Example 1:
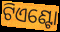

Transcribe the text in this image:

ଟିଏଣ୍ଟୋ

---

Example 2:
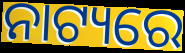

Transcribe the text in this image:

ନାଟ୍ୟରେ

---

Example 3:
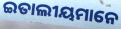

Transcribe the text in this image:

ଇତାଲୀୟମାନେ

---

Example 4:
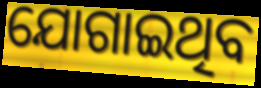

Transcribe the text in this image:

ଯୋଗାଇଥିବ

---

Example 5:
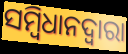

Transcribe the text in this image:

ସମ୍ବିଧାନଦ୍ବାରା